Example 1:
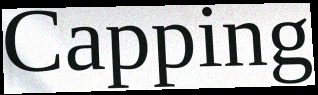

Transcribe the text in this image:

Capping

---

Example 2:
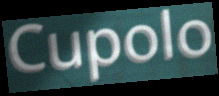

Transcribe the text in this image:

Cupolo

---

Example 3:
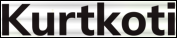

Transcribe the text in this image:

Kurtkoti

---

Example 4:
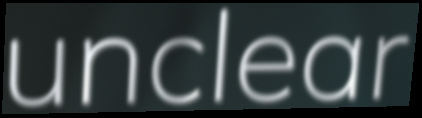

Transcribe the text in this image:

unclear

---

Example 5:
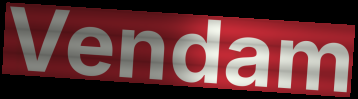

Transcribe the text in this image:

Vendam